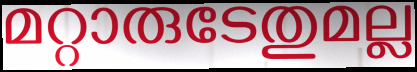
മറ്റാരുടേതുമല്ല